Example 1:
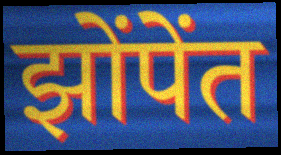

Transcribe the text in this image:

झोंपेंत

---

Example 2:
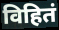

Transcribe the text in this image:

विहितं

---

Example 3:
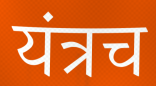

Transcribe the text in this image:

यंत्रच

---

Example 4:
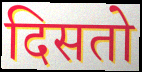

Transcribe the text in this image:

दिसतो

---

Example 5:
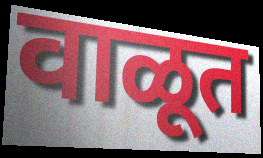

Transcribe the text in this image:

वाळूत